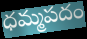
ధమ్మపదం